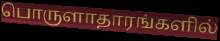
பொருளாதாரங்களில்